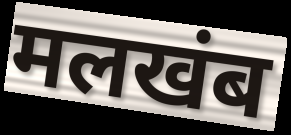
मलखंब